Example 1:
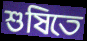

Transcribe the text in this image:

শুষিতে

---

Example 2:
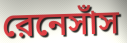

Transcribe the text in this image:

রেনেসাঁস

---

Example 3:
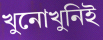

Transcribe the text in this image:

খুনোখুনিই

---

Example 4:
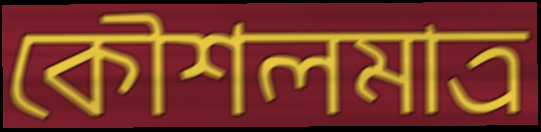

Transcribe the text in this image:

কৌশলমাত্র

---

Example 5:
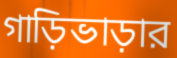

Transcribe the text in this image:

গাড়িভাড়ার